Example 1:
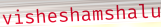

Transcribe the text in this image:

visheshamshalu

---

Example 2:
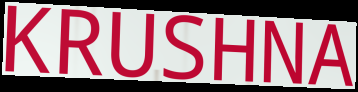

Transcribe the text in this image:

KRUSHNA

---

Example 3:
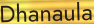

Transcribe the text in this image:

Dhanaula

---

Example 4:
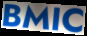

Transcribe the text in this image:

BMIC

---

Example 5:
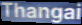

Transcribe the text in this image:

Thangai